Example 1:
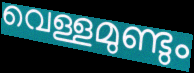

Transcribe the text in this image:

വെള്ളമുണ്ടും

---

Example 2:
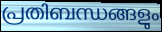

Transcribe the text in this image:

പ്രതിബന്ധങ്ങളും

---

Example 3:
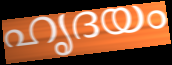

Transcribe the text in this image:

ഹൃദയം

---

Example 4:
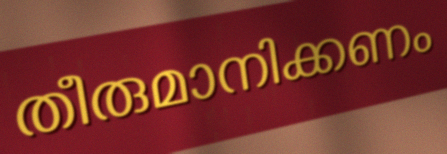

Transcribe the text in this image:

തീരുമാനിക്കണം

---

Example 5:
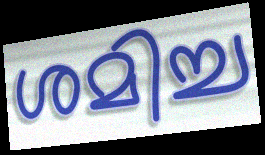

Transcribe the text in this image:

ശമിച്ച